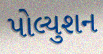
પોલ્યુશન